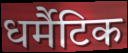
धर्मैटिक